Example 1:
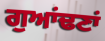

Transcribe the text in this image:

ਗੁਆਂਢਣਾਂ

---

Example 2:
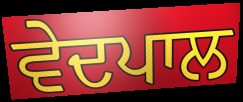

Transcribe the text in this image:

ਵੇਦਪਾਲ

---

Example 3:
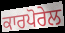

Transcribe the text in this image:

ਕਾਰਪੋਰੇਲ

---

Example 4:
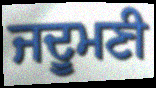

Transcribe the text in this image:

ਜਦੂਮਣੀ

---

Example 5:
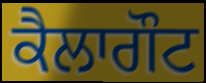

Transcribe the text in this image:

ਕੈਲਾਗੌਟ